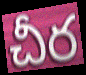
చీర